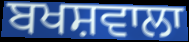
ਬਖਸ਼ਵਾਲਾ